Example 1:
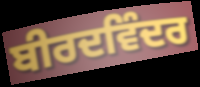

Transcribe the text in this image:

ਬੀਰਦਵਿੰਦਰ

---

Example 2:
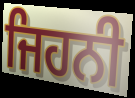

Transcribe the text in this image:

ਜਿਹਨੀ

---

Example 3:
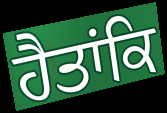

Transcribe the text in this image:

ਹੈਤਾਂਕਿ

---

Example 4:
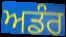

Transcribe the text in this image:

ਅਡੰਰ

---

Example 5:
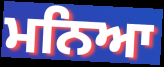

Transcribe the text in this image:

ਮਨਿਆ